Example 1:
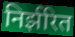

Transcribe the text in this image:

निर्झरित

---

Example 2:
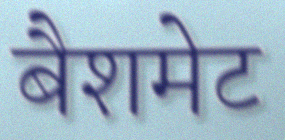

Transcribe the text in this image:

बैशमेट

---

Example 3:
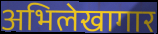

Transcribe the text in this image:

अभिलेखागार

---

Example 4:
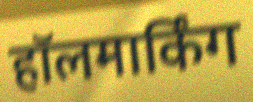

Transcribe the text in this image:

हॉलमार्किंग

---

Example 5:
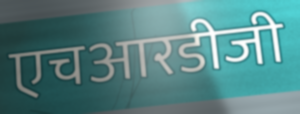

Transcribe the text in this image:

एचआरडीजी